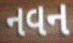
નવન